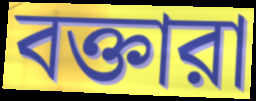
বক্তারা